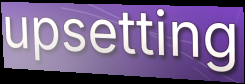
upsetting